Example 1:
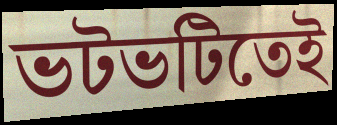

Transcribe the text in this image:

ভটভটিতেই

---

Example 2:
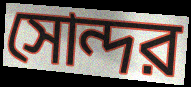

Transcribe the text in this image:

সোন্দর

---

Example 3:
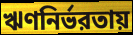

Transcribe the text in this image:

ঋণনির্ভরতায়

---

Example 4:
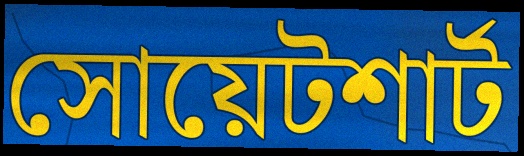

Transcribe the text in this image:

সোয়েটশার্ট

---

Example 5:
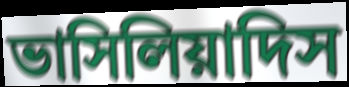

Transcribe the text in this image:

ভাসিলিয়াদিস